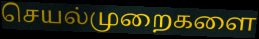
செயல்முறைகளை